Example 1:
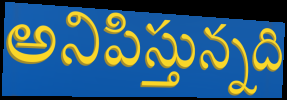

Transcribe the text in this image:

అనిపిస్తున్నది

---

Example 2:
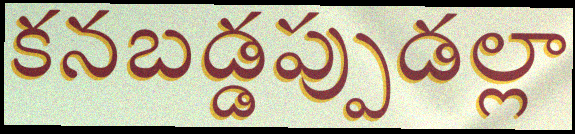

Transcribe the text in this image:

కనబడ్డప్పుడల్లా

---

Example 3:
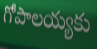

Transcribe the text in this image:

గోపాలయ్యకు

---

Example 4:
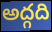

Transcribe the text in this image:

అద్గది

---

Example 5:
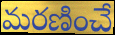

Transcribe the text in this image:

మరణించే